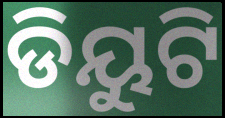
ଡିୟୁଟି